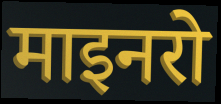
माइनरो